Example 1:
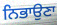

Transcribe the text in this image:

ਨਿਭਾਉਣਾ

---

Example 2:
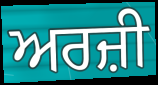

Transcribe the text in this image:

ਅਰਜ਼ੀ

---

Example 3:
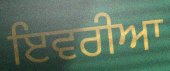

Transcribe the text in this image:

ਇਵਰੀਆ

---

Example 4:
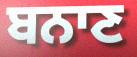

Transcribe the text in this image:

ਬਨਾਣ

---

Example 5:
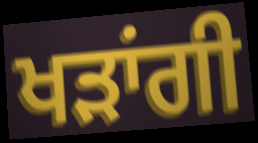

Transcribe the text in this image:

ਖੜਾਂਗੀ